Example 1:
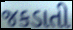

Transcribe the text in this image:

જકડાતી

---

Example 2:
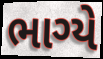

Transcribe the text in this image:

ભાગ્યે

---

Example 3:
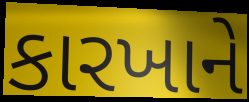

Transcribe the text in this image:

કારખાને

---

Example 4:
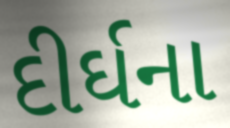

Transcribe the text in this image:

દીર્ઘના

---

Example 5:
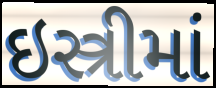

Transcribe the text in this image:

ઇસ્ત્રીમાં